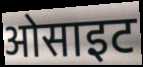
ओसाइट